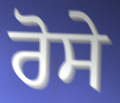
ਰੋਸੇ